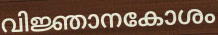
വിജ്ഞാനകോശം